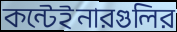
কন্টেইনারগুলির